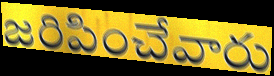
జరిపించేవారు